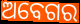
ଅବେଗର